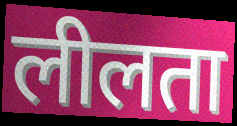
लीलता